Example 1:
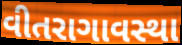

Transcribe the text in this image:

વીતરાગાવસ્થા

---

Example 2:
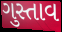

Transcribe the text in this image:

ગુસ્તાવ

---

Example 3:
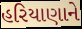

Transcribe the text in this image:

હરિયાણાને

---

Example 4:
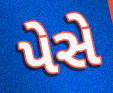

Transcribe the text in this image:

પેસે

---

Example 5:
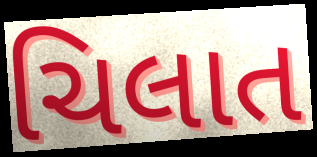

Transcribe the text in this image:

ચિલાત